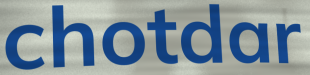
chotdar